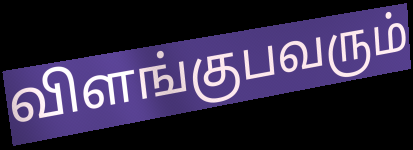
விளங்குபவரும்